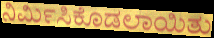
ನಿರ್ಮಿಸಿಕೊಡಲಾಯಿತು